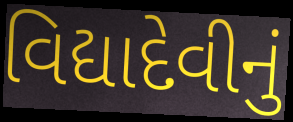
વિદ્યાદેવીનું